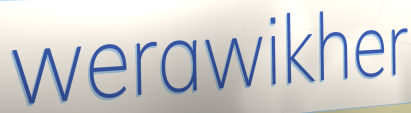
werawikher